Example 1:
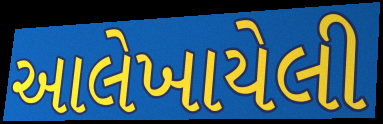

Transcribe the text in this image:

આલેખાયેલી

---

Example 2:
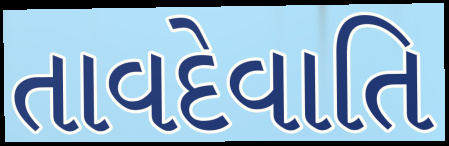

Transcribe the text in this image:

તાવદેવાતિ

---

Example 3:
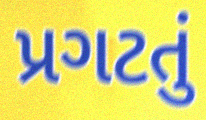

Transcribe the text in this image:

પ્રગટતું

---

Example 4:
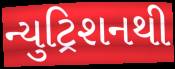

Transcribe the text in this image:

ન્યુટ્રિશનથી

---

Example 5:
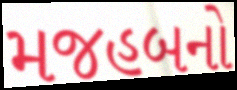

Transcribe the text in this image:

મજહબનો